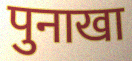
पुनाखा